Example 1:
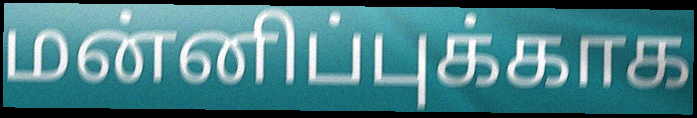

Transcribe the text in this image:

மன்னிப்புக்காக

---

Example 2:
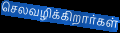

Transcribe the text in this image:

செலவழிக்கிறார்கள்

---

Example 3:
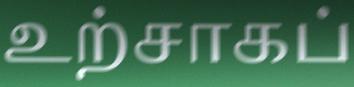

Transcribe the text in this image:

உற்சாகப்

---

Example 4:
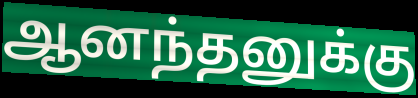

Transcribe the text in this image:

ஆனந்தனுக்கு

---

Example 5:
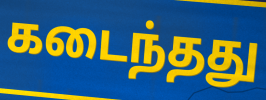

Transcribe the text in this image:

கடைந்தது